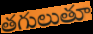
తగులుతూ